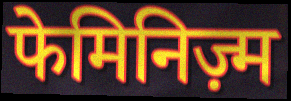
फेमिनिज़्म